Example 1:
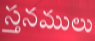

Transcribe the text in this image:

స్తనములు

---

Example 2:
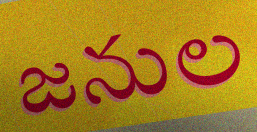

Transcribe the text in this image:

జనుల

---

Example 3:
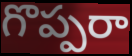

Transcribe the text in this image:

గొప్పరా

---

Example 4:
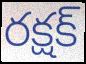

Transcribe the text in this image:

రక్షక్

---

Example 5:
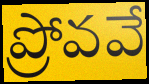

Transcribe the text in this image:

ప్రోవవే